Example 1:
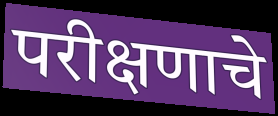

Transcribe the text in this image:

परीक्षणाचे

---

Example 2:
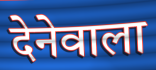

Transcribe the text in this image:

देनेवाला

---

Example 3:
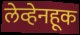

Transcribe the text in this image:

लेव्हेनहूक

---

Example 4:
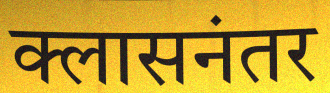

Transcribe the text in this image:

क्लासनंतर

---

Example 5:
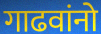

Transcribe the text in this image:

गाढवांनो